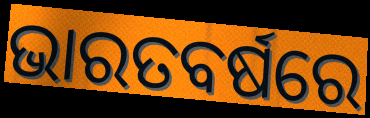
ଭାରତବର୍ଷରେ